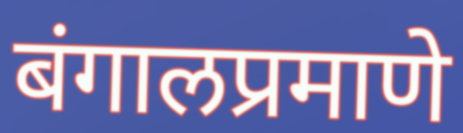
बंगालप्रमाणे